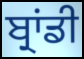
ਬ੍ਰਾਂਡੀ